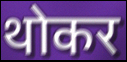
थोकर